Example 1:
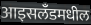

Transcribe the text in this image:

आइसलँडमधील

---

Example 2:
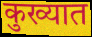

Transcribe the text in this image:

कुख्यात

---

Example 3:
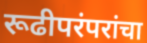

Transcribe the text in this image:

रूढीपरंपरांचा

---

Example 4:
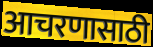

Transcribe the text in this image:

आचरणासाठी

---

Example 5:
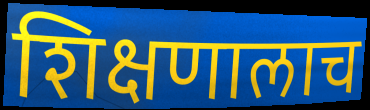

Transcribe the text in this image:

शिक्षणालाच